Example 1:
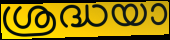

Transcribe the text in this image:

ശ്രദ്ധയാ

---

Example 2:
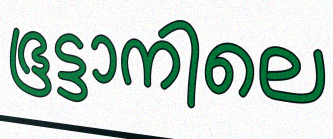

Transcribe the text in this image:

ഭൂട്ടാനിലെ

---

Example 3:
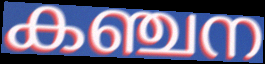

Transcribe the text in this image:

കഞ്ചന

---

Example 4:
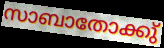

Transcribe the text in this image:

സാബാതോക്കു്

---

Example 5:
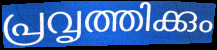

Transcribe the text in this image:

പ്രവൃത്തിക്കും